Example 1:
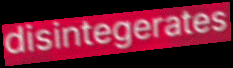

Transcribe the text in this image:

disintegerates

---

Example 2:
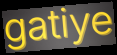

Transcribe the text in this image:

gatiye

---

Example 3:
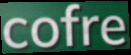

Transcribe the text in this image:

cofre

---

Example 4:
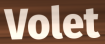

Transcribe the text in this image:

Volet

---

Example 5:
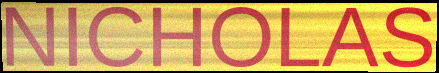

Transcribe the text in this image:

NICHOLAS